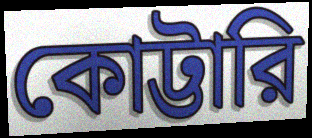
কোট্টারি